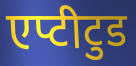
एप्टीटुड